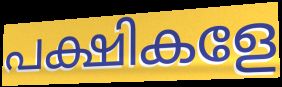
പക്ഷികളേ